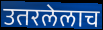
उतरलेलाच